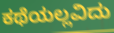
ಕಥೆಯಲ್ಲವಿದು